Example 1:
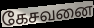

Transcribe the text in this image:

கேசவனை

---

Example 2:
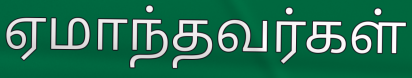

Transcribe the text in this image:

ஏமாந்தவர்கள்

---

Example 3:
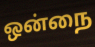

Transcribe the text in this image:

ஒன்நை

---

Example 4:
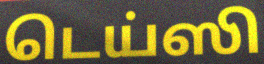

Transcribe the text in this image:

டெய்ஸி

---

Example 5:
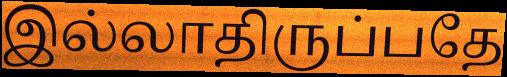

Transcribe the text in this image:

இல்லாதிருப்பதே